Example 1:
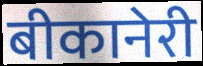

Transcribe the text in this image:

बीकानेरी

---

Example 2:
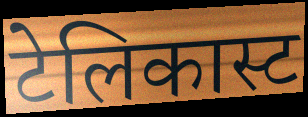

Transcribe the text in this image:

टेलिकास्ट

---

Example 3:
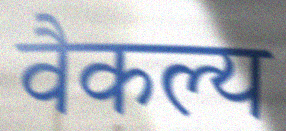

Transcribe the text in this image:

वैकल्य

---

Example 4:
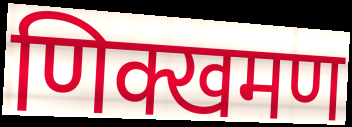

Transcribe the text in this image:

णिक्खमण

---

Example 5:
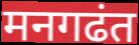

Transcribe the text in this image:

मनगढंत